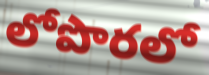
లోపొరలో